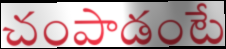
చంపాడంటే